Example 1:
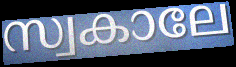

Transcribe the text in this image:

സ്വകാലേ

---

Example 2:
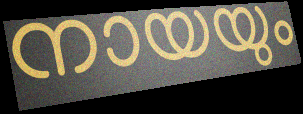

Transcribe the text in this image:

നായയും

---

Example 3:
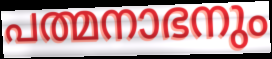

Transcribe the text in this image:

പത്മനാഭനും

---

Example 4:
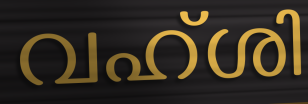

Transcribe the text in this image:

വഹ്ശി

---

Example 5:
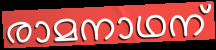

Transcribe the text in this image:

രാമനാഥന്